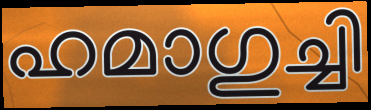
ഹമാഗുച്ചി